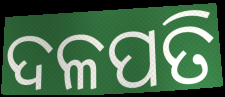
ଦଳପତି